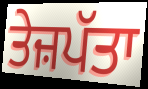
ਤੇਜ਼ਪੱਤਾ